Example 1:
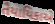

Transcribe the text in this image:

તૈયાયિકાએ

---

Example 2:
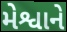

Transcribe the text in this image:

મેશ્વાને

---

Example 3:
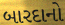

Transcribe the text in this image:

બારદાનો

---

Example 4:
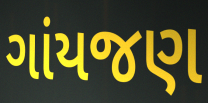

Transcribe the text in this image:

ગાંયજણ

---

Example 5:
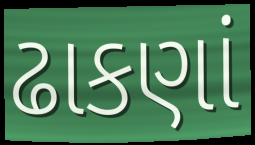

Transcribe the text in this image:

ઢાકણાં